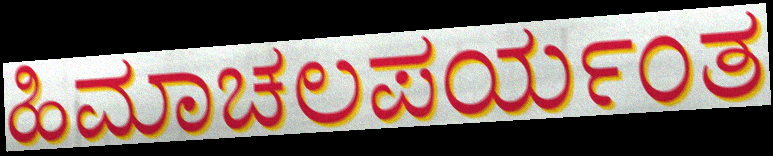
ಹಿಮಾಚಲಪರ್ಯಂತ